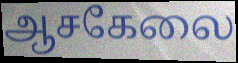
ஆசகேலை